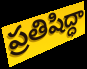
ప్రతిషిద్ధా